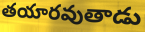
తయారవుతాడు